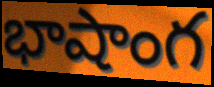
భాషాంగ